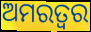
ଅମରତ୍ୱର